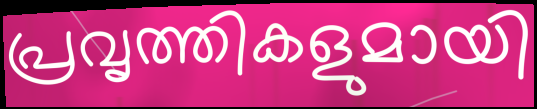
പ്രവൃത്തികളുമായി